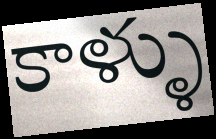
కాళ్ళు